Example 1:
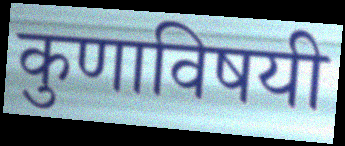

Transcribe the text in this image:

कुणाविषयी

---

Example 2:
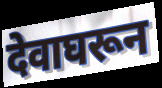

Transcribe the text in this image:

देवाघरून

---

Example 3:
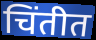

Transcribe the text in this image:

चिंतीत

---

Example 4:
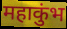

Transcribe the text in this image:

महाकुंभ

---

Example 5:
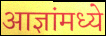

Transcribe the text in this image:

आज्ञांमध्ये